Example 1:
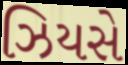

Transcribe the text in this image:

ઝિયસે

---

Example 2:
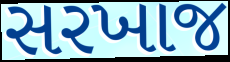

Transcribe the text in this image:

સરખાજ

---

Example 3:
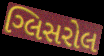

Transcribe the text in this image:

ગ્લિસરોલ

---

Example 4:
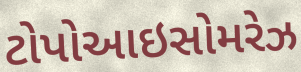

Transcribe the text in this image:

ટોપોઆઇસોમરેઝ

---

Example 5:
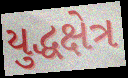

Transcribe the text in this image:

યુદ્ધક્ષેત્ર